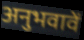
अनुभवावें